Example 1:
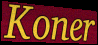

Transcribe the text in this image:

Koner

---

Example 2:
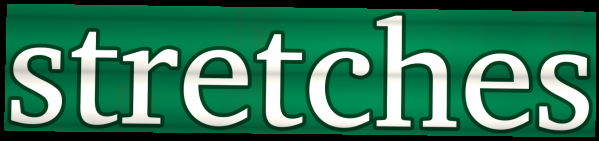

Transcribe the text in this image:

stretches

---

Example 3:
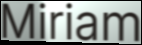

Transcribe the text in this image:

Miriam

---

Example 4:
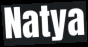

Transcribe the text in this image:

Natya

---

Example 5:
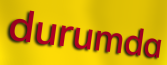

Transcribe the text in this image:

durumda